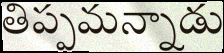
తిప్పమన్నాడు